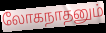
லோகநாதனும்